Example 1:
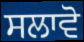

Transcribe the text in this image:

ਸਲਾਵੋ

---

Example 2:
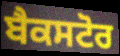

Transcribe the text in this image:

ਬੈਕਸਟੋਰ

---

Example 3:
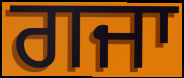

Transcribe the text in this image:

ਗਜਾ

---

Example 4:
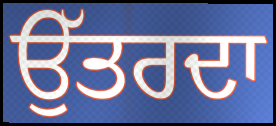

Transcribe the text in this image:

ਉੱਤਰਦਾ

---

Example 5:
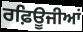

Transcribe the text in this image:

ਰਫ਼ਿਊਜੀਆਂ